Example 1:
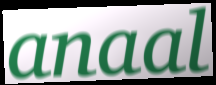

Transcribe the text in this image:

anaal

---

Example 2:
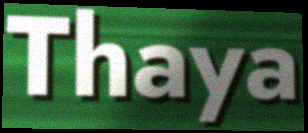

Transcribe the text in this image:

Thaya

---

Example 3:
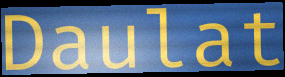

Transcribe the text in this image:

Daulat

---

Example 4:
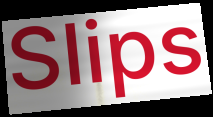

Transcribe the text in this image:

Slips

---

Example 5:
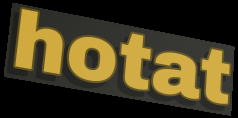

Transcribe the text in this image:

hotat